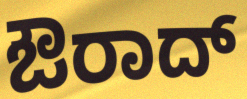
ಔರಾದ್